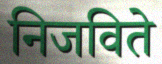
निजविते